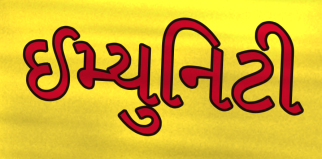
ઈમ્યુનિટી